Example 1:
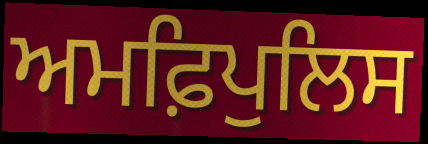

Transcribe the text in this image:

ਅਮਫ਼ਿਪੁਲਿਸ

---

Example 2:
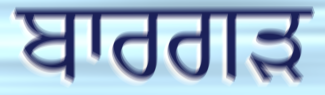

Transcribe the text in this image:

ਬਾਰਗੜ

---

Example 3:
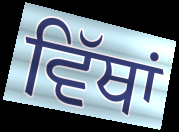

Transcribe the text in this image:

ਵਿੱਥਾਂ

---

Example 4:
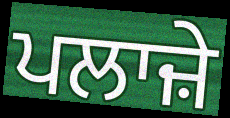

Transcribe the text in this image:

ਪਲਾਜ਼ੇ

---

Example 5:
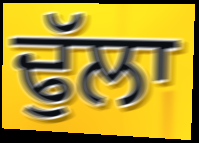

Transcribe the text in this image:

ਢੁੱਲਾ